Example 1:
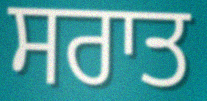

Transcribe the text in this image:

ਸਰਾਤ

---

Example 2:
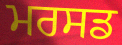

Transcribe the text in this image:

ਮਰਸਡ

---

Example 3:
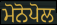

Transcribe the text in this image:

ਮੋਨੋਪੋਲ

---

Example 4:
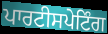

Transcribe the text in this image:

ਪਾਰਟੀਸਪੇਟਿੰਗ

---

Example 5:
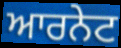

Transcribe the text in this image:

ਆਰਨੇਟ